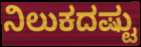
ನಿಲುಕದಷ್ಟು